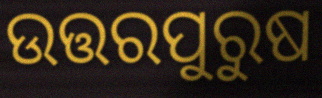
ଉତ୍ତରପୁରୁଷ